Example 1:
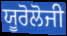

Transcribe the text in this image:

ਯੂਰੋਲੋਜੀ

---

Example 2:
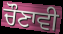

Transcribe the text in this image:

ਚੌਣਾਵੀ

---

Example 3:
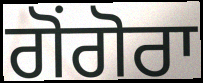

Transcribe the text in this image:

ਗੋਂਗੋਰਾ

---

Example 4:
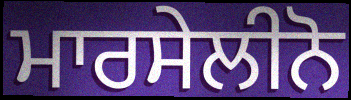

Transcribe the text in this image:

ਮਾਰਸੇਲੀਨੋ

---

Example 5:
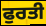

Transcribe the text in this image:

ਫੁਰਤੀ